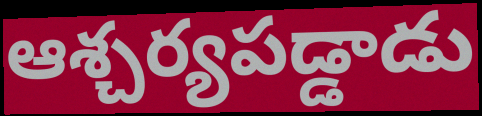
ఆశ్చర్యపడ్డాడు